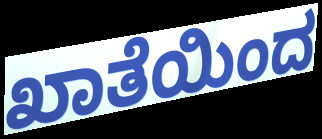
ಖಾತೆಯಿಂದ